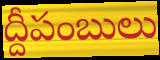
ద్దీపంబులు